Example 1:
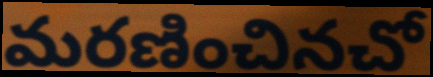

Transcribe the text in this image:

మరణించినచో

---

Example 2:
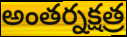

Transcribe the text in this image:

అంతర్నక్షత్ర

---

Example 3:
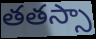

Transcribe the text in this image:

తతస్సా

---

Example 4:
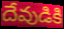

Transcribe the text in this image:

దేవుడికి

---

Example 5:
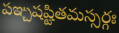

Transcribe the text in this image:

పఞ్చషష్టితమస్సర్గః